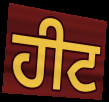
ਹੀਟ